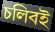
চলিবই